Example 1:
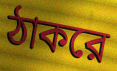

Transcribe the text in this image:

ঠাকরে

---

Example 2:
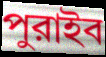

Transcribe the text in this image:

পুরাইব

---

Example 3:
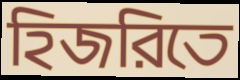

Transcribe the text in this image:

হিজরিতে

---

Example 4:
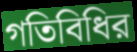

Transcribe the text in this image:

গতিবিধির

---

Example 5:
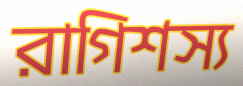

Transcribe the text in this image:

রাগিশস্য